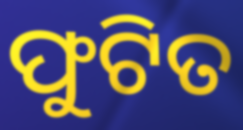
ଫୁଟିତ